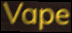
Vape